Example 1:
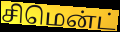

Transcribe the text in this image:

சிமென்ட்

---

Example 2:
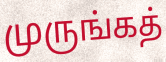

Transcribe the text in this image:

முருங்கத்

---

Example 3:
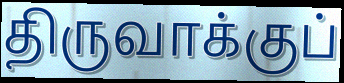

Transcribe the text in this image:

திருவாக்குப்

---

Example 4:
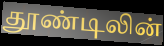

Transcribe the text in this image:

தூண்டிலின்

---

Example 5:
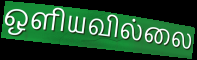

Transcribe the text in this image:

ஒளியவில்லை